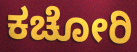
ಕಚೋರಿ